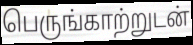
பெருங்காற்றுடன்